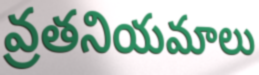
వ్రతనియమాలు